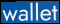
wallet